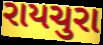
રાયચુરા